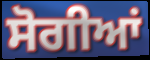
ਸੋਗੀਆਂ